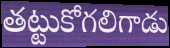
తట్టుకోగలిగాడు